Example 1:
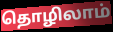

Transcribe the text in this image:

தொழிலாம்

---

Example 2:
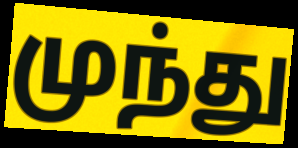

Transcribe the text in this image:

முந்து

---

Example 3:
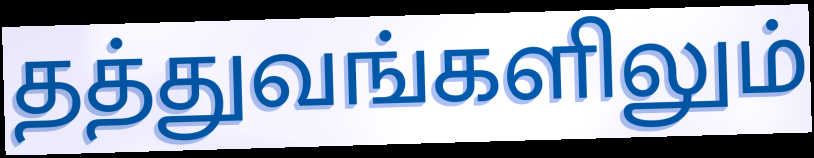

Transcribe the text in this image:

தத்துவங்களிலும்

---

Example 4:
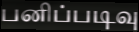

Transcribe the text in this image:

பனிப்படிவு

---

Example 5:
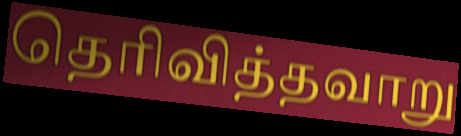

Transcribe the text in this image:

தெரிவித்தவாறு